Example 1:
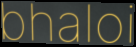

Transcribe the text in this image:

bhaloi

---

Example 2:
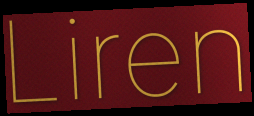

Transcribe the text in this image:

Liren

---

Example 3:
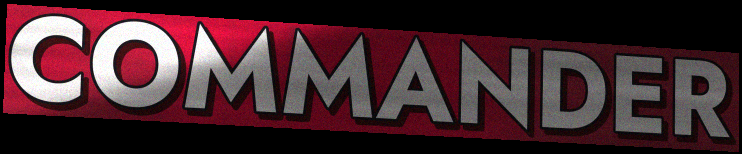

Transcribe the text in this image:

COMMANDER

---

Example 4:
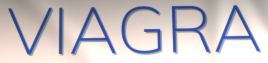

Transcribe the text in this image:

VIAGRA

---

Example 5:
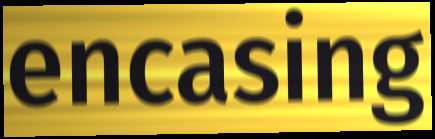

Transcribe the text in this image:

encasing